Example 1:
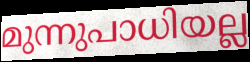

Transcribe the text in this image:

മുന്നുപാധിയല്ല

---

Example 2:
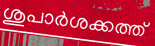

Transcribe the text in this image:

ശുപാർശക്കത്ത്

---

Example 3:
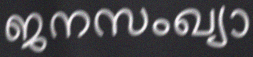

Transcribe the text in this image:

ജനസംഖ്യാ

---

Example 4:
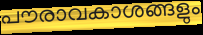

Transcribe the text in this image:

പൗരാവകാശങ്ങളും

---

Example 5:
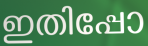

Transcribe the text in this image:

ഇതിപ്പോ